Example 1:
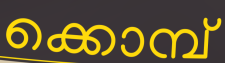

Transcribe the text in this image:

ക്കൊമ്പ്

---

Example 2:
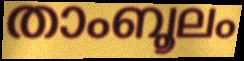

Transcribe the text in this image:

താംബൂലം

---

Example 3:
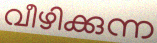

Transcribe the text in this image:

വീഴിക്കുന്ന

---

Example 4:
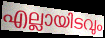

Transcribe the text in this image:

എല്ലായിടവും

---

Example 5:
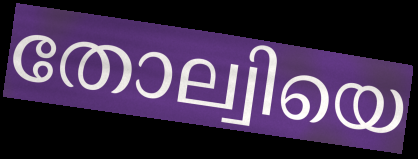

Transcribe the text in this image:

തോല്വിയെ